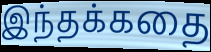
இந்தக்கதை